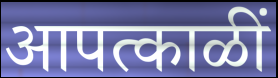
आपत्काळीं